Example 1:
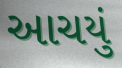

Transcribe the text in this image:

આચયું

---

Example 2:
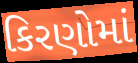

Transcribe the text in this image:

કિરણોમાં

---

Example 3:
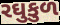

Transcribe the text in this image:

રઘુકુળ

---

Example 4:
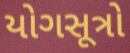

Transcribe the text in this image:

યોગસૂત્રો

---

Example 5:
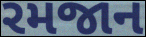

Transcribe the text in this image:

રમજાન